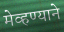
मेव्हण्याने